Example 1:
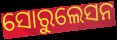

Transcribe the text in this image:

ସୋରୁଲେସନ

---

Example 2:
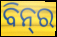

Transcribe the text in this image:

ବିନ୍‍ର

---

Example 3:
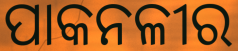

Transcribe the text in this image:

ପାକନଳୀର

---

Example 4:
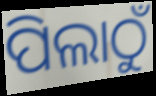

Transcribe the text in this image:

ପିଲାଠୁଁ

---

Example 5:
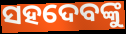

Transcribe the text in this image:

ସହଦେବଙ୍କୁ